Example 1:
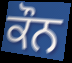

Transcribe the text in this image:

ਕੌਨ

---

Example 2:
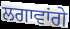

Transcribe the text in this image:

ਲਗਾਵਾਂਗੇ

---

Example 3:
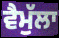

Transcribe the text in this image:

ਵੈਮੁੱਲਾ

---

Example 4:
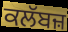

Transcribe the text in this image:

ਕਲੱਬਜ਼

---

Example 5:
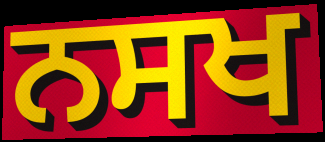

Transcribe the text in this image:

ਨਸਖ